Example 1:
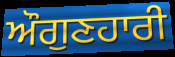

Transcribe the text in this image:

ਔਗੁਣਹਾਰੀ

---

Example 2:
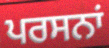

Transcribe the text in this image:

ਪਰਸਨਾਂ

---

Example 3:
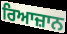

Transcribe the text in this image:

ਰਿਆਜ਼ਾਨ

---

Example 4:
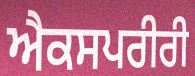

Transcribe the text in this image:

ਐਕਸਪਰੀਰੀ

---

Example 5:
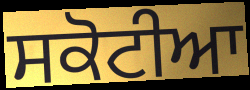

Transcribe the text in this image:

ਸਕੋਟੀਆ